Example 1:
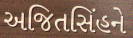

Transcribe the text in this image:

અજિતસિંહને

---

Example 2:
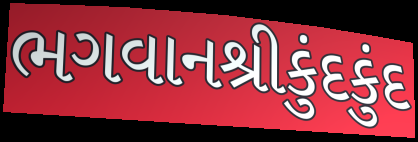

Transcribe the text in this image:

ભગવાનશ્રીકુંદકુંદ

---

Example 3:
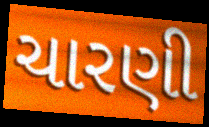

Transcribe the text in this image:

ચારણી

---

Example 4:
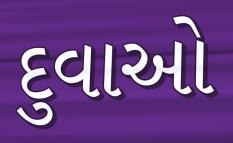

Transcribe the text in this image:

દુવાઓ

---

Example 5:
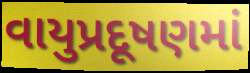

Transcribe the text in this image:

વાયુપ્રદૂષણમાં